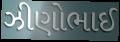
ઝીણોભાઈ